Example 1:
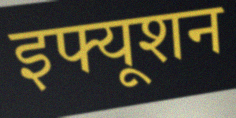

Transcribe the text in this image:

इफ्यूशन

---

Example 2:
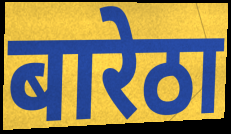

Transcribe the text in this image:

बारेठा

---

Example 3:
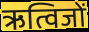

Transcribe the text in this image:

ऋत्विजों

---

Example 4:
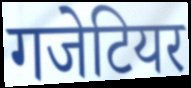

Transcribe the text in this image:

गजेटियर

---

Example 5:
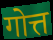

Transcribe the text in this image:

गोत्त